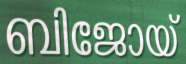
ബിജോയ്